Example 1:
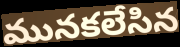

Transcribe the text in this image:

మునకలేసిన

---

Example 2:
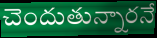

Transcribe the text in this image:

చెందుతున్నారనే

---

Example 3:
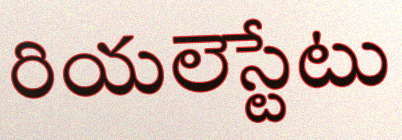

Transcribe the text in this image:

రియలెస్టేటు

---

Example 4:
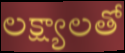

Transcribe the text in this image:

లక్ష్యాలతో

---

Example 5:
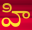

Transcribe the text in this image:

హి